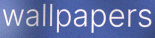
wallpapers